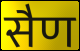
सैण